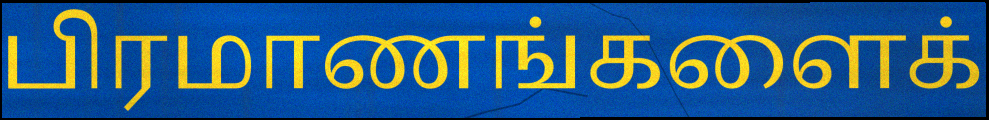
பிரமாணங்களைக்